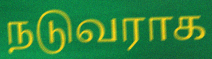
நடுவராக